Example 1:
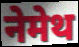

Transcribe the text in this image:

नेमेथ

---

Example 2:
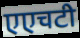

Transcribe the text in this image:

एएचटी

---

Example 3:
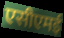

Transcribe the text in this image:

एसीएमई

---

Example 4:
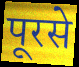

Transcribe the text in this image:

पूरसे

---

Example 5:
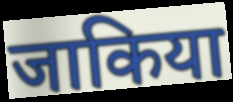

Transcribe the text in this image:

जाकिया